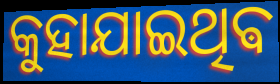
କୁହାଯାଇଥିଵ